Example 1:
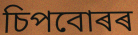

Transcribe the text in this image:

চিপবোৰৰ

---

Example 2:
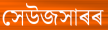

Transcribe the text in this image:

সেউজসাৰৰ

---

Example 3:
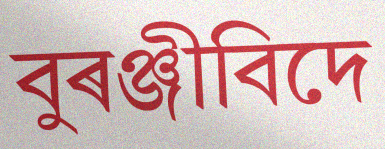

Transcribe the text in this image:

বুৰঞ্জীবিদে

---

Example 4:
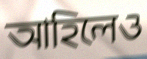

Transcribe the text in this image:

আহিলেও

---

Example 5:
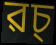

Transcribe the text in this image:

ৱচ্